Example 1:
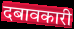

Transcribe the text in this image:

दबावकारी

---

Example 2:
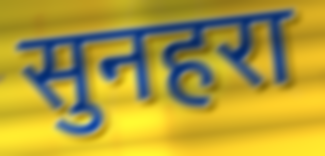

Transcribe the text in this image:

सुनहरा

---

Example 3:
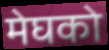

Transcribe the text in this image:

मेघको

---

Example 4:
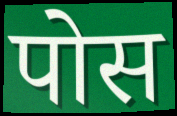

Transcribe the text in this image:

पोस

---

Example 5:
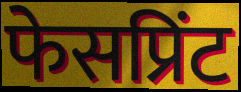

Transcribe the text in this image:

फेसप्रिंट